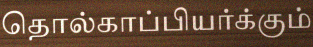
தொல்காப்பியர்க்கும்